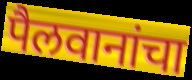
पैलवानांचा